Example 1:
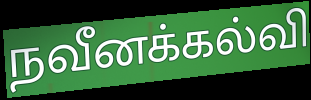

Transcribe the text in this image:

நவீனக்கல்வி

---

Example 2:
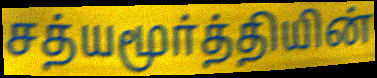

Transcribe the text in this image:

சத்யமூர்த்தியின்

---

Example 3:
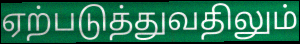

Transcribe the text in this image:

ஏற்படுத்துவதிலும்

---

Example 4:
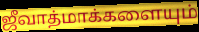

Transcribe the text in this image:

ஜீவாத்மாக்களையும்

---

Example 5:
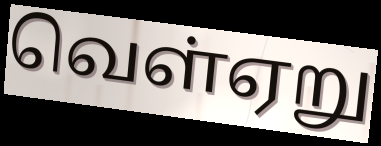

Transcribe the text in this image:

வெள்ஏறு